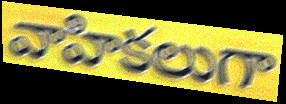
వాహికలుగా